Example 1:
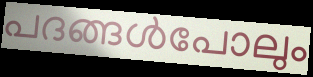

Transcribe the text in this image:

പദങ്ങൾപോലും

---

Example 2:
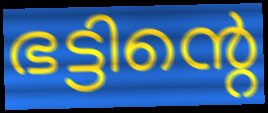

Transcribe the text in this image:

ഭട്ടിന്റെ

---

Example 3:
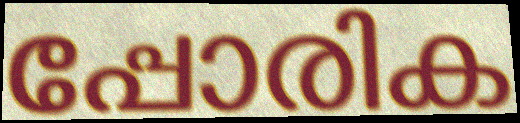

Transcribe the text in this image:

പ്പോരിക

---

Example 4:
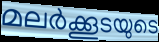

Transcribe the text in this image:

മലർക്കൂടയുടെ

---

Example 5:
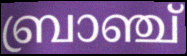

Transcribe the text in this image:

ബ്രാഞ്ച്